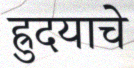
ह्रुदयाचे